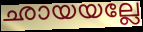
ഛായയല്ലേ